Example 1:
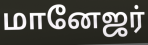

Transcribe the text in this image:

மானேஜர்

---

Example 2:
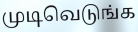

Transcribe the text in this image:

முடிவெடுங்க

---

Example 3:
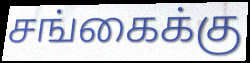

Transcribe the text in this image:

சங்கைக்கு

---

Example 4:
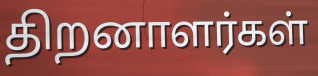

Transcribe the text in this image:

திறனாளர்கள்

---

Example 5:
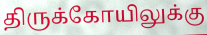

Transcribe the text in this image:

திருக்கோயிலுக்கு